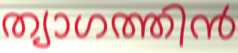
ത്യാഗത്തിൻ